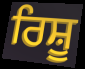
ਰਿਸ਼ੂ